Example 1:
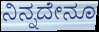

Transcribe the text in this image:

ನಿನ್ನದೇನೂ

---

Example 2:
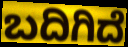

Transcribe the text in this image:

ಬದಿಗಿದೆ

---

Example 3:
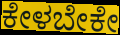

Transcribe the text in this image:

ಕೇಳಬೇಕೇ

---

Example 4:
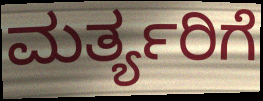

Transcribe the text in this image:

ಮರ್ತ್ಯರಿಗೆ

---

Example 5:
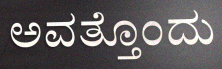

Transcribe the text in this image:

ಅವತ್ತೊಂದು